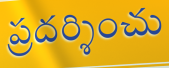
ప్రదర్శించు